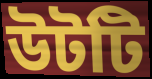
উটটি